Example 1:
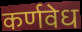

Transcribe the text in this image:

कर्णवेध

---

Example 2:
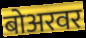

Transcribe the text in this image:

बोअरवर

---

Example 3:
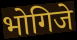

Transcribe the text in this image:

भोगिजे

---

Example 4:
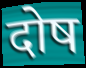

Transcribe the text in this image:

दोष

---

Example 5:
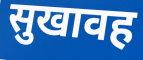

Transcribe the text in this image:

सुखावह